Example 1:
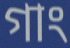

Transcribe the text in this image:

গাং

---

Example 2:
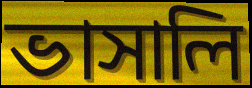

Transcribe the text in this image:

ভাসালি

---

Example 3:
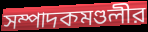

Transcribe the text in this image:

সম্পাদকমণ্ডলীর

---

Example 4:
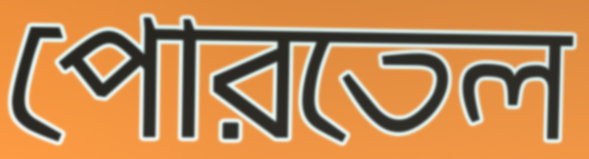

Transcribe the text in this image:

পোরতেল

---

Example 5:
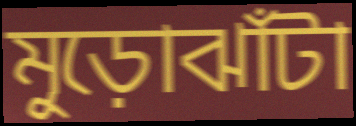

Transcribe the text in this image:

মুড়োঝাঁটা